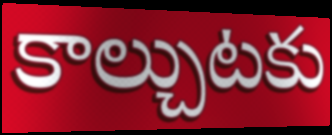
కాల్చుటకు